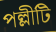
পল্লীটি